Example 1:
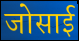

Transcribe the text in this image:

जोसाई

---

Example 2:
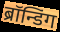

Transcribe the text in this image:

ब्रॉन्डिंग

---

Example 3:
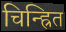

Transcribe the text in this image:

चिन्ह्रित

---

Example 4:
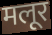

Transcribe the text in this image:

मलूर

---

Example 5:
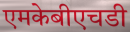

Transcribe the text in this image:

एमकेबीएचडी